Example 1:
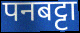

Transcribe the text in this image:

पनबट्टा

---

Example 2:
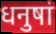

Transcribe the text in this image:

धनुषां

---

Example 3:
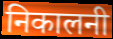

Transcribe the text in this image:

निकालनी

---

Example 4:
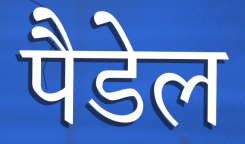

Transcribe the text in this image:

पैडेल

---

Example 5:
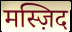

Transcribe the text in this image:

मस्ज़िद